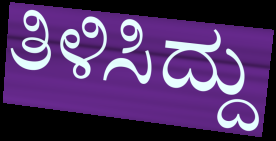
ತಿಳಿಸಿದ್ದು